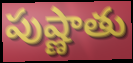
పుష్ణాతు